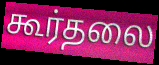
கூர்தலை